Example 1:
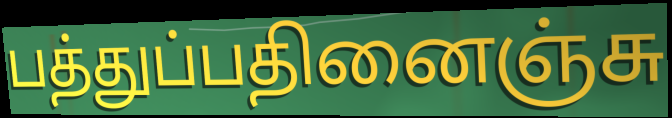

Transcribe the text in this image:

பத்துப்பதினைஞ்சு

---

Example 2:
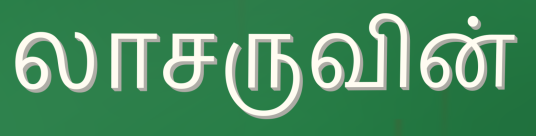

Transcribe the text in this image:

லாசருவின்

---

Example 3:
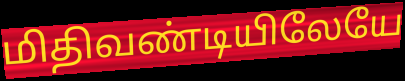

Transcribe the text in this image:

மிதிவண்டியிலேயே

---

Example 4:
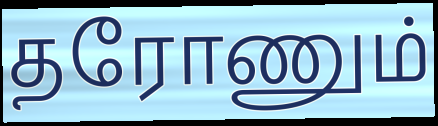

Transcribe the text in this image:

தரோணும்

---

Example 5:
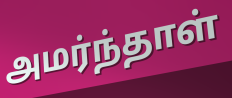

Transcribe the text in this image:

அமர்ந்தாள்